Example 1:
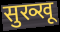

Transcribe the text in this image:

सुख्खू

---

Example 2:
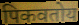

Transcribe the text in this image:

पिकवतोय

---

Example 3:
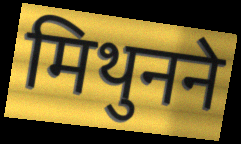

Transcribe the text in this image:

मिथुनने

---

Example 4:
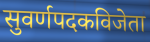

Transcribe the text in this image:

सुवर्णपदकविजेता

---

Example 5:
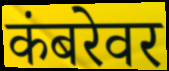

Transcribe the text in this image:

कंबरेवर